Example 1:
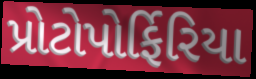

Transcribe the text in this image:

પ્રોટોપોર્ફિરિયા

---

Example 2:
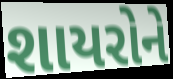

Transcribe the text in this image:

શાયરોને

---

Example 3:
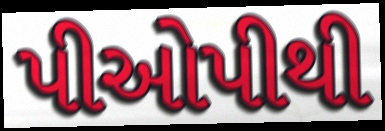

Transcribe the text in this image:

પીઓપીથી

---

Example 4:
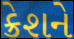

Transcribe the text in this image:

ક્રેશને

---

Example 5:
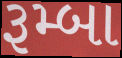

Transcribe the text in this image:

રૂમ્બા